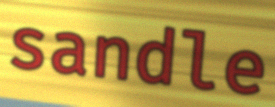
sandle